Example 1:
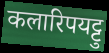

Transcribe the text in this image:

कलारिपयट्टु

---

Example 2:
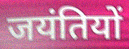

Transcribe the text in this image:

जयंतियों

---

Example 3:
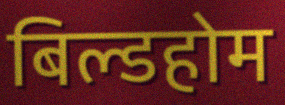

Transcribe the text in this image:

बिल्डहोम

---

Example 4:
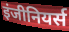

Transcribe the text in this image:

इंजीनियर्स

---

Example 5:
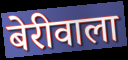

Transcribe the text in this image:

बेरीवाला